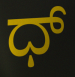
ಧ್